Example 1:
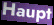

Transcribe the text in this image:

Haupt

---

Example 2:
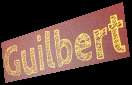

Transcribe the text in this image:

Guilbert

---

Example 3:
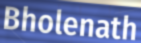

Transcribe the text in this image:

Bholenath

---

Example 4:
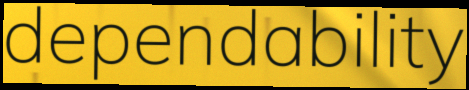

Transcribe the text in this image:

dependability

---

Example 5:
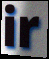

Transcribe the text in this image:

ir